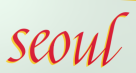
seoul